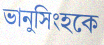
ভানুসিংহকে